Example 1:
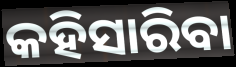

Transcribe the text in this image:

କହିସାରିବା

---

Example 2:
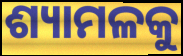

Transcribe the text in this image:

ଶ୍ୟାମଳକୁ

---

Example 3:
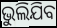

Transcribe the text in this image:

ଭୁଲିଯିବ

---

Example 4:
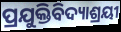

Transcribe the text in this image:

ପ୍ରଯୁକ୍ତିବିଦ୍ୟାଶ୍ରୟୀ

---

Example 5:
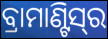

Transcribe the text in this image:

ବ୍ରାମାଣ୍ଟିସ୍‌ର